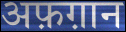
अफ़ग़ान